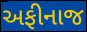
અફીનાજ